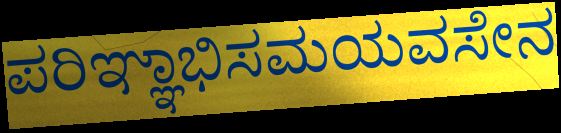
ಪರಿಞ್ಞಾಭಿಸಮಯವಸೇನ